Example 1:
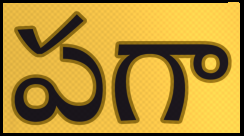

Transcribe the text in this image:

పగా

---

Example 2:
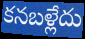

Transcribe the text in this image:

కనబళ్లేదు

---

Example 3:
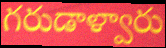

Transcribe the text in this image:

గరుడాళ్వారు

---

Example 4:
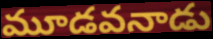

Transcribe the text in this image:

మూడవనాడు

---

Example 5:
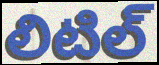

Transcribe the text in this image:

లిటిల్